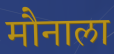
मौनाला